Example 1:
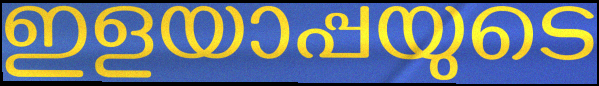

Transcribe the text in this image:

ഇളയാപ്പയുടെ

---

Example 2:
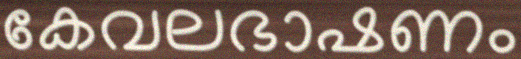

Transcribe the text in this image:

കേവലഭാഷണം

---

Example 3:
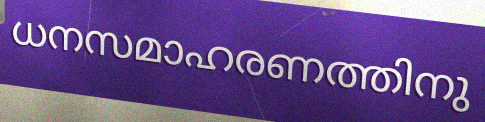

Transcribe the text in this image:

ധനസമാഹരണത്തിനു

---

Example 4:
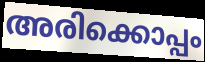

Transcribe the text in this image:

അരിക്കൊപ്പം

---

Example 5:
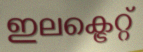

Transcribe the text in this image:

ഇലക്ട്രെറ്റ്